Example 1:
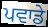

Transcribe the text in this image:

ਪਵਾਡੇ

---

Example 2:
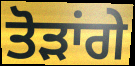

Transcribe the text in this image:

ਤੋੜਾਂਗੇ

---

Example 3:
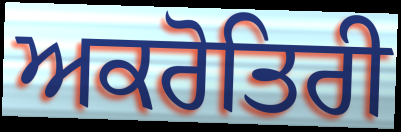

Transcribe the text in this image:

ਅਕਰੋਤਿਰੀ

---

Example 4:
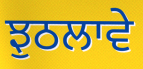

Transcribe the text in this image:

ਝੁਠਲਾਵੇ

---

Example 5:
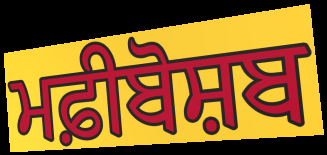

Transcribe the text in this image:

ਮਫ਼ੀਬੋਸ਼ਬ